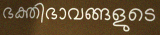
ഭക്തിഭാവങ്ങളുടെ